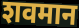
शवमान